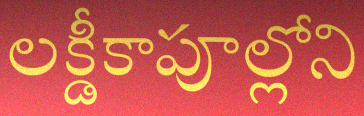
లక్డీకాపూల్లోని